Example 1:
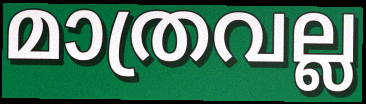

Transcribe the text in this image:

മാത്രവല്ല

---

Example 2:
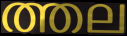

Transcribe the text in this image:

ത്തല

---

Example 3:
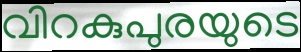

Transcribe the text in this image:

വിറകുപുരയുടെ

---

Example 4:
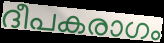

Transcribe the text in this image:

ദീപകരാഗം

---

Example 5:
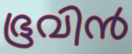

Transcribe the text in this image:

ഭൂവിൻ